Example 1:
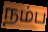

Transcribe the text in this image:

நம்ப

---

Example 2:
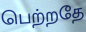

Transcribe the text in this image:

பெற்றதே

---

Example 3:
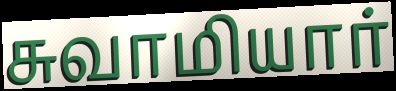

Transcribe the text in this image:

சுவாமியார்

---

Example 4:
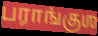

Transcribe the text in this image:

பராங்குஶ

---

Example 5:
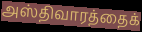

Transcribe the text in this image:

அஸ்திவாரத்தைக்